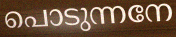
പൊടുന്നനേ